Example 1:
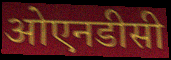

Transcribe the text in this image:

ओएनडीसी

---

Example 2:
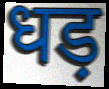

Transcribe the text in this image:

धड़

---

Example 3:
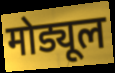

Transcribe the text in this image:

मोड्यूल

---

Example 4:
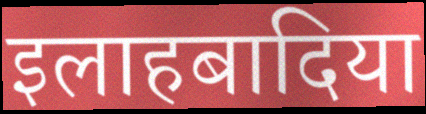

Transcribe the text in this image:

इलाहबादिया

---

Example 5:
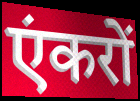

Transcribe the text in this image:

एंकरों